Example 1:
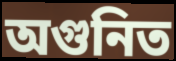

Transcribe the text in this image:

অগুনিত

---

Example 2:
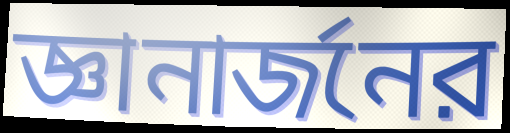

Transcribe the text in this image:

জ্ঞানার্জনের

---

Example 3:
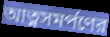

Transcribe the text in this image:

আত্নসমর্পণের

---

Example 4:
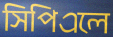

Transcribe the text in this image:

সিপিএলে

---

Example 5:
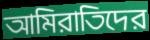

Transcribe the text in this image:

আমিরাতিদের